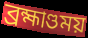
ব্রহ্মাণ্ডময়